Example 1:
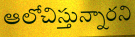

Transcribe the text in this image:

ఆలోచిస్తున్నారని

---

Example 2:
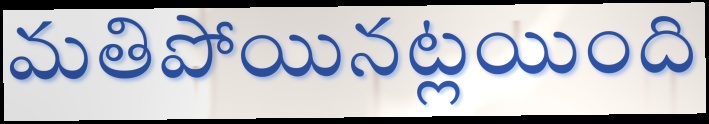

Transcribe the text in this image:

మతిపోయినట్లయింది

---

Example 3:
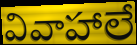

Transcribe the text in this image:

వివాహాలే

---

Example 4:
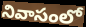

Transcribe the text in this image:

నివాసంలో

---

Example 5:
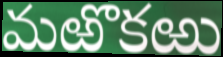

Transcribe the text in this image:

మఱొకఱు